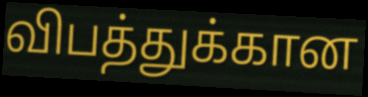
விபத்துக்கான